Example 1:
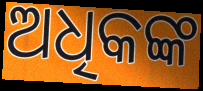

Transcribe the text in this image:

ଅଧିକଙ୍କ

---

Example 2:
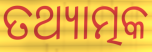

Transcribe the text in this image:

ତଥ୍ୟାତ୍ମକ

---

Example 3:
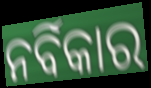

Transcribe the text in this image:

ନର୍ବିକାର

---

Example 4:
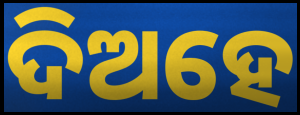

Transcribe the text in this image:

ଦିଅହେ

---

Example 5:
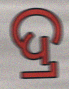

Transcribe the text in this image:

ଦ୍ର